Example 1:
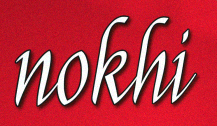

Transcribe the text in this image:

nokhi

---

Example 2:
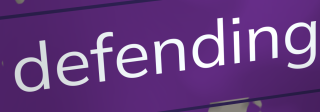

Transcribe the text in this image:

defending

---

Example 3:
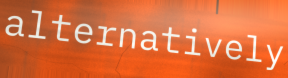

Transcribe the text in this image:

alternatively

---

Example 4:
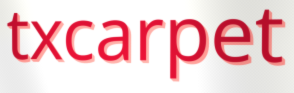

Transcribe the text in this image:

txcarpet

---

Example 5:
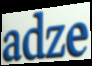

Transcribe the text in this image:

adze